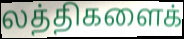
லத்திகளைக்